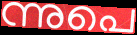
ന്നുപെ